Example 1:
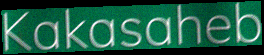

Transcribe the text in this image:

Kakasaheb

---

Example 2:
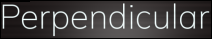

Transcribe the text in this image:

Perpendicular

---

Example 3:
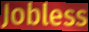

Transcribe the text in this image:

Jobless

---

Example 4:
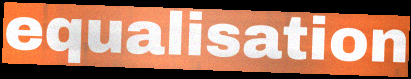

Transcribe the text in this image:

equalisation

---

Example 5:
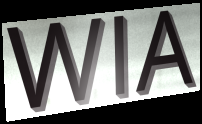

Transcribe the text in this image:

WIA